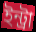
ইন্ট্রা